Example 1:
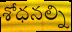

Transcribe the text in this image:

శోధనల్ని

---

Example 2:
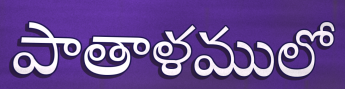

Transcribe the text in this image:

పాతాళములో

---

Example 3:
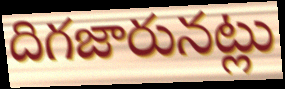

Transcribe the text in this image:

దిగజారునట్లు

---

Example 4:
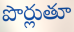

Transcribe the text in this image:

పొర్లుతూ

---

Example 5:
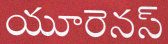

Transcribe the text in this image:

యూరెనస్